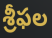
శ్రీఫల